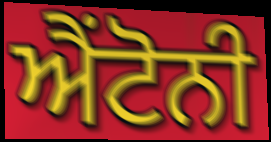
ਐਂਟੋਨੀ